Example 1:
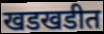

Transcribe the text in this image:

खडखडीत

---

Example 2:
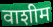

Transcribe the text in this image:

वाशीम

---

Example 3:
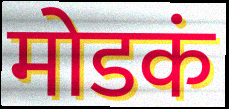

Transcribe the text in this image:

मोडकं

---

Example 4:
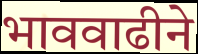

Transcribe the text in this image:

भाववाढीने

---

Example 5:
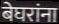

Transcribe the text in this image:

बेघरांना